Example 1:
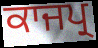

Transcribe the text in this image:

ਕਾਜਪ੍ਰ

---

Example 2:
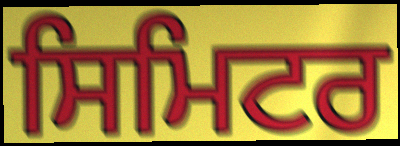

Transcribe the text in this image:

ਸਿਮਿਟਰ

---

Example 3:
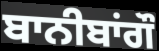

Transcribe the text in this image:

ਬਾਨੀਬਾਂਗੌ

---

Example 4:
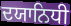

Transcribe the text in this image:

ਦਯਾਨਿਧੀ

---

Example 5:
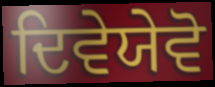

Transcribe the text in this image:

ਦਿਵੇਯੇਵੋ